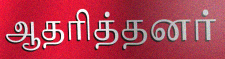
ஆதரித்தனர்